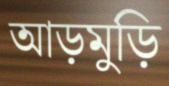
আড়মুড়ি